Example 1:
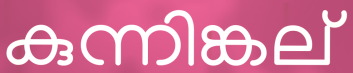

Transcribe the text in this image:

കുന്നിങ്കല്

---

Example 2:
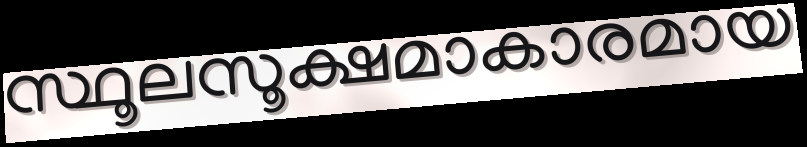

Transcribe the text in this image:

സ്ഥൂലസൂക്ഷമാകാരമായ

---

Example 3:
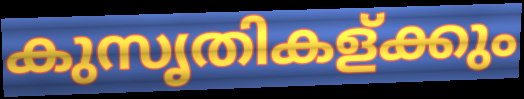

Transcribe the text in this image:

കുസൃതികള്ക്കും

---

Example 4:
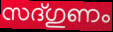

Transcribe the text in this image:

സദ്ഗുണം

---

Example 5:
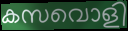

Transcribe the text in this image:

കസവൊളി